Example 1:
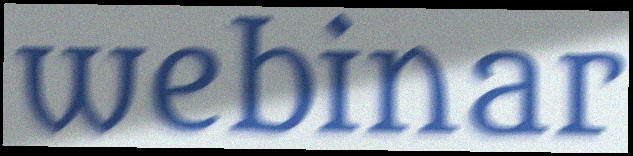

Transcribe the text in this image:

webinar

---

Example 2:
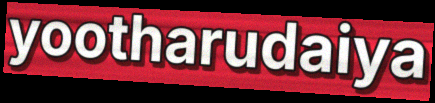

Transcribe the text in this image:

yootharudaiya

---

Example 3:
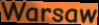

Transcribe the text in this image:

Warsaw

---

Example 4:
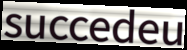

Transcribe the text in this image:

succedeu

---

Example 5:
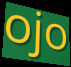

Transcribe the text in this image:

ojo